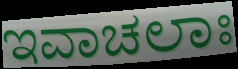
ಇವಾಚಲಾಃ